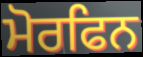
ਮੋਰਫਿਨ